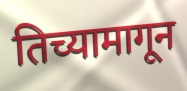
तिच्यामागून